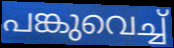
പങ്കുവെച്ച്